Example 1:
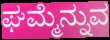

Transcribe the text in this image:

ಘಮ್ಮೆನ್ನುವ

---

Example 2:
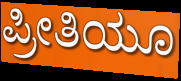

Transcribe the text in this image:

ಪ್ರೀತಿಯೂ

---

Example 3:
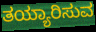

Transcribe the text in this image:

ತಯ್ಯಾರಿಸುವ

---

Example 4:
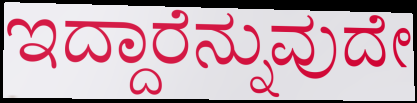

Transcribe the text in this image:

ಇದ್ದಾರೆನ್ನುವುದೇ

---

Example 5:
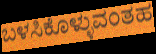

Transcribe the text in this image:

ಬಳಸಿಕೊಳ್ಳುವಂತಹ